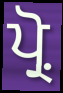
ਪ੍ਰ਼ੋ